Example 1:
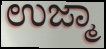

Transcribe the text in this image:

ಉಜ್ಮಾ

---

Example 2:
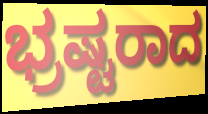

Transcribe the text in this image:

ಭ್ರಷ್ಟರಾದ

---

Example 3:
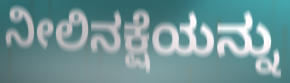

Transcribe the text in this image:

ನೀಲಿನಕ್ಷೆಯನ್ನು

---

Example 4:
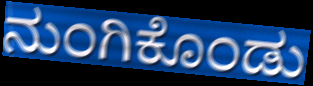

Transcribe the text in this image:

ನುಂಗಿಕೊಂಡು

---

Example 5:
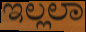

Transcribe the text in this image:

ಇಲ್ಲಲಾ